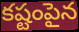
కష్టంపైన